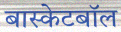
बास्‍केटबॉल